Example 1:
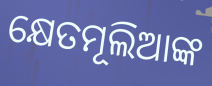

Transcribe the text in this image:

କ୍ଷେତମୂଲିଆଙ୍କ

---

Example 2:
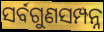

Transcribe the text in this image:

ସର୍ବଗୁଣସମ୍ପନ୍ନ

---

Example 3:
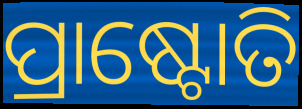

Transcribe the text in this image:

ପ୍ରାଷ୍ଟୋତି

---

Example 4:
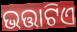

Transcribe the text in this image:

ଭତ୍ତାଟିଏ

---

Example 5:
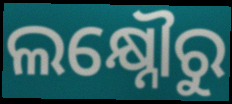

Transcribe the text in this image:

ଲକ୍ଷ୍ନୌରୁ